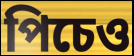
পিচেও